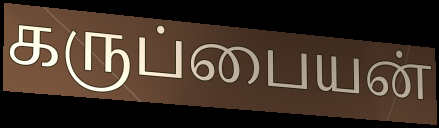
கருப்பையன்